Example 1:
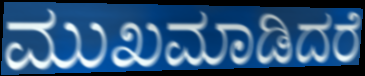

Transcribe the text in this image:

ಮುಖಮಾಡಿದರೆ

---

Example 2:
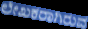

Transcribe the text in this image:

ಲೇಖಕರಾಗಿರುವ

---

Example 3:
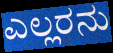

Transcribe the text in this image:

ಎಲ್ಲರನು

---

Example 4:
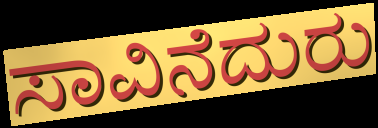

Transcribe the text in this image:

ಸಾವಿನೆದುರು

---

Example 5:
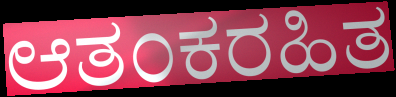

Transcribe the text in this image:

ಆತಂಕರಹಿತ